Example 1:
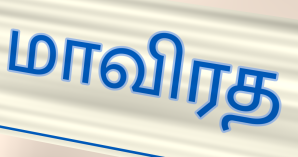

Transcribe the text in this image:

மாவிரத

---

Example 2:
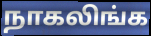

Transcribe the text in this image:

நாகலிங்க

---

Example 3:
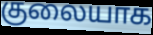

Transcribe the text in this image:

குலையாக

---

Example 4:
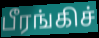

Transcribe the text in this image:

பீரங்கிச்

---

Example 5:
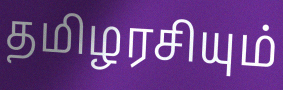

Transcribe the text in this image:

தமிழரசியும்